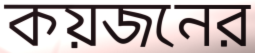
কয়জনের